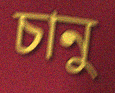
চানু